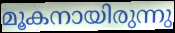
മൂകനായിരുന്നു